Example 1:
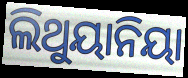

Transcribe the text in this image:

ଲିଥୁୟାନିୟା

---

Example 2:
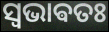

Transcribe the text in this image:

ସ୍ଵଭାଵତଃ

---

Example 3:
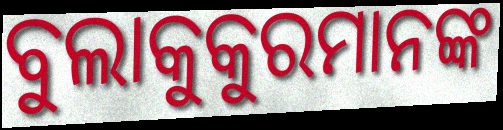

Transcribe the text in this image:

ବୁଲାକୁକୁରମାନଙ୍କ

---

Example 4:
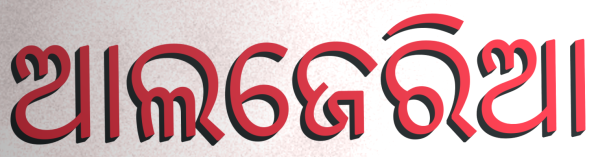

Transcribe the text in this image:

ଆଲଜେରିଆ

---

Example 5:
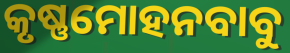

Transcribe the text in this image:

କୃଷ୍ଣମୋହନବାବୁ